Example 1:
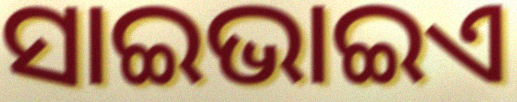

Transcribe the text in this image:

ସାଇଭାଇଏ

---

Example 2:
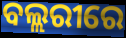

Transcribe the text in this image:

ବଲ୍ଲରୀରେ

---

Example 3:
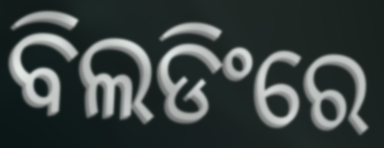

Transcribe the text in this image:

ବିଲଡିଂରେ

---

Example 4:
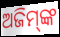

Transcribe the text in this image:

ଅଜିମ୍‌ଙ୍କ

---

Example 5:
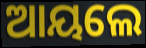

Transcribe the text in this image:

ଆୟଲେ